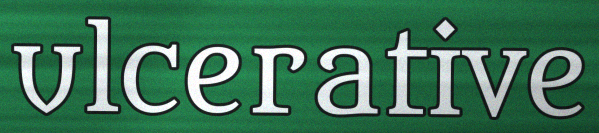
ulcerative